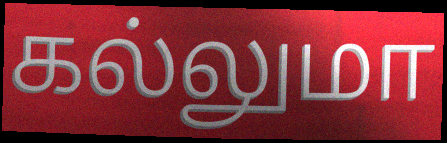
கல்லுமா